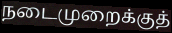
நடைமுறைக்குத்